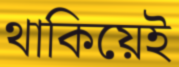
থাকিয়েই